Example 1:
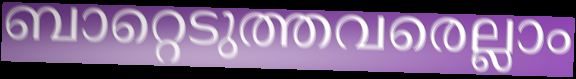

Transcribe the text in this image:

ബാറ്റെടുത്തവരെല്ലാം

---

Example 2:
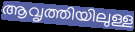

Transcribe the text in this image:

ആവൃത്തിയിലുള്ള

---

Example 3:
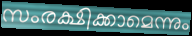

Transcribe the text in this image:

സംരക്ഷിക്കാമെന്നും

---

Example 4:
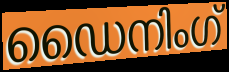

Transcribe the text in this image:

ഡൈനിംഗ്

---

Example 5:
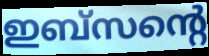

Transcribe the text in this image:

ഇബ്സന്റെ